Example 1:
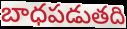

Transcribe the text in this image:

బాధపడుతది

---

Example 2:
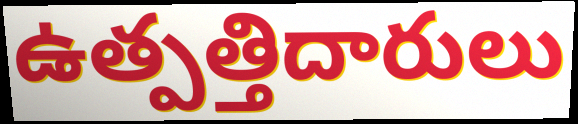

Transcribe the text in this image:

ఉత్పత్తిదారులు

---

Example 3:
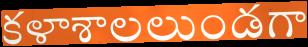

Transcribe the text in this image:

కళాశాలలుండగా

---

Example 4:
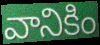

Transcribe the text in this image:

వానికిం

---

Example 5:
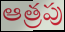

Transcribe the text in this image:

ఆత్రపు